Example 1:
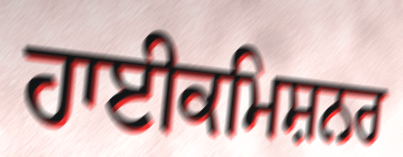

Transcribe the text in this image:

ਹਾਈਕਮਿਸ਼ਨਰ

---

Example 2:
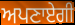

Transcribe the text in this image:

ਅਪਣਾਏਗੀ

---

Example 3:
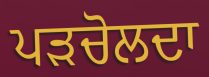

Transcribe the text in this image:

ਪੜਚੋਲਦਾ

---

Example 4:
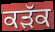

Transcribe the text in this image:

ਕੜੱਕ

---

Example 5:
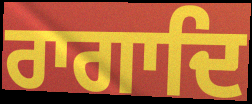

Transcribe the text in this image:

ਰਾਗਾਦਿ